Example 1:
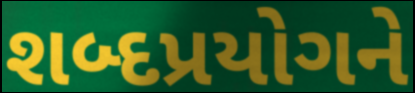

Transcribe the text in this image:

શબ્દપ્રયોગને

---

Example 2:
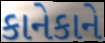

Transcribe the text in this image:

કાનેકાને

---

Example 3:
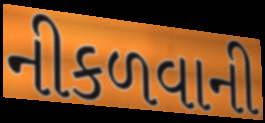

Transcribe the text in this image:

નીકળવાની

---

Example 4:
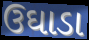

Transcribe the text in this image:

ઉઘાડા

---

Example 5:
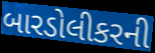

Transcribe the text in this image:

બારડોલીકરની